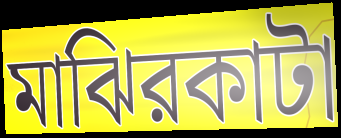
মাঝিরকাটা